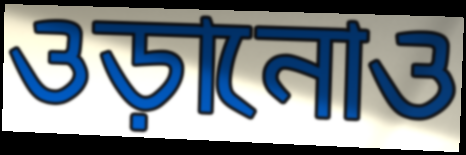
ওড়ানোও